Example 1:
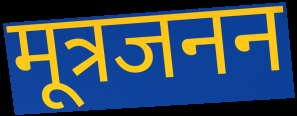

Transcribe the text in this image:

मूत्रजनन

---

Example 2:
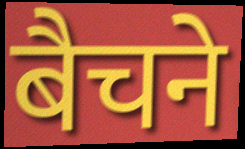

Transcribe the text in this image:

बैचने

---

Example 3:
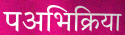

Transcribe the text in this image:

पअभिक्रिया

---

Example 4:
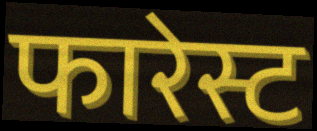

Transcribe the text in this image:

फारेस्ट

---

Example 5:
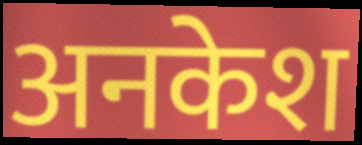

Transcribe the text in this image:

अनकेश